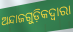
ଅନ୍ଦାଜଗୁଡ଼ିକଦ୍ୱାରା